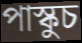
পাস্কুচ